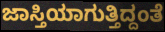
ಜಾಸ್ತಿಯಾಗುತ್ತಿದ್ದಂತೆ